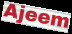
Ajeem